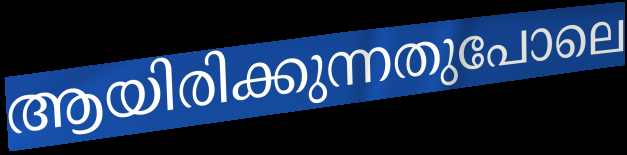
ആയിരിക്കുന്നതുപോലെ